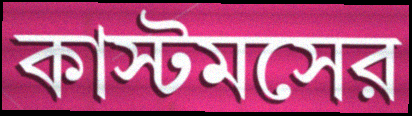
কাস্টমসের